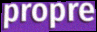
propre